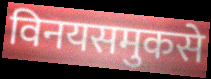
विनयसमुकसे